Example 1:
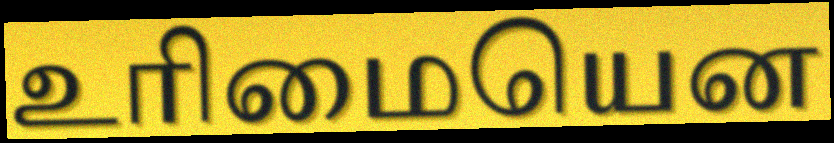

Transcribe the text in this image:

உரிமையென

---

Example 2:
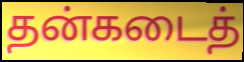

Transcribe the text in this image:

தன்கடைத்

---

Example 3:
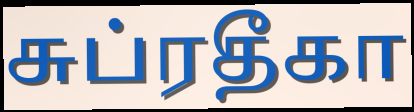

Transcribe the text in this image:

சுப்ரதீகா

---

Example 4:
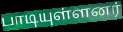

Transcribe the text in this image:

பாடியுள்ளனர்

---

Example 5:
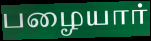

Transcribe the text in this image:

பழையார்